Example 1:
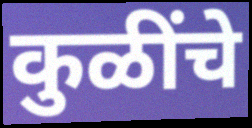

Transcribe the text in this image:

कुळींचे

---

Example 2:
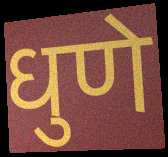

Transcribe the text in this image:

धुणे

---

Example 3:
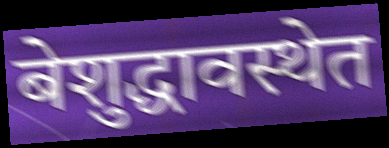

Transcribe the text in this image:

बेशुद्धावस्थेत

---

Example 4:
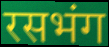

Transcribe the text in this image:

रसभंग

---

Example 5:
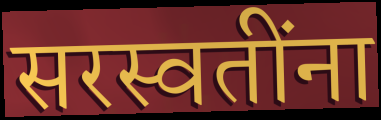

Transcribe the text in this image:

सरस्वतींना